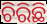
ଚିରିଛି